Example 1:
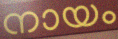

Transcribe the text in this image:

നായം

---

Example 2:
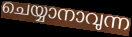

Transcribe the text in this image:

ചെയ്യാനാവുന്ന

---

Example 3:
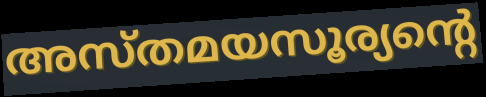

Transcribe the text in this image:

അസ്തമയസൂര്യന്റെ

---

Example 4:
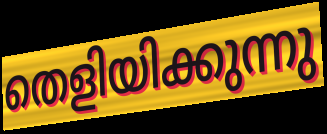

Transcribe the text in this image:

തെളിയിക്കുന്നു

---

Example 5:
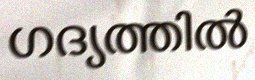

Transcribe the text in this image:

ഗദ്യത്തിൽ